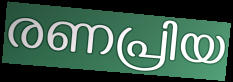
രണപ്രിയ